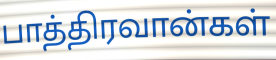
பாத்திரவான்கள்